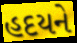
હદયને